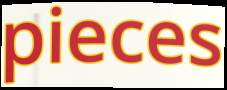
pieces